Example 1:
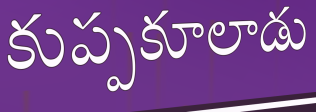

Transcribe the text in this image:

కుప్పకూలాడు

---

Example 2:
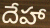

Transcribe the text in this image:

దేహా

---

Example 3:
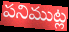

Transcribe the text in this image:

పనిముట్ల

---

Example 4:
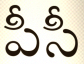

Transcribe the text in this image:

పీసీ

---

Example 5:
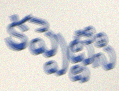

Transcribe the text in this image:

కప్పెట్టేసి